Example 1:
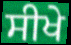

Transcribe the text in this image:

ਸੀਖੇ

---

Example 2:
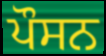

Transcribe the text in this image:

ਪੌਸਨ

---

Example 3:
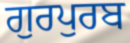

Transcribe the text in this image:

ਗੁਰਪੁਰਬ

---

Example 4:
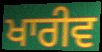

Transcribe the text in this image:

ਖਾਰੀਵ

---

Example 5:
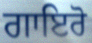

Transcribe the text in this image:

ਗਾਇਰੋ